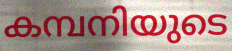
കമ്പനിയുടെ